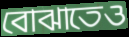
বোঝাতেও